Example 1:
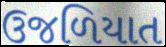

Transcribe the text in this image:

ઉજળિયાત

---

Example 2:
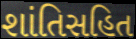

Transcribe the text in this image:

શાંતિસહિત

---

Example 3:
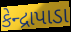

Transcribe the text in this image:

કેન્દ્રાપાડા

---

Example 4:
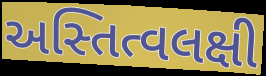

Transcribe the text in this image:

અસ્તિત્વલક્ષી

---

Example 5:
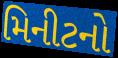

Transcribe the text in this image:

મિનીટનો